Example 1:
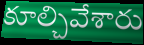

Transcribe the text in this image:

కూల్చివేశారు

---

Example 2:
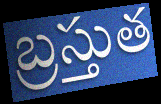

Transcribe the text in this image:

బ్రస్తుత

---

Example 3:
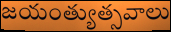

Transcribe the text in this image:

జయంత్యుత్సవాలు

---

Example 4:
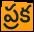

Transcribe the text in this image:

ప్రక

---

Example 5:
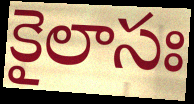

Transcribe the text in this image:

కైలాసః